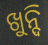
ଖୁନ୍ଦି